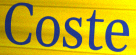
Coste